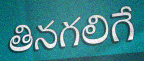
తినగలిగే